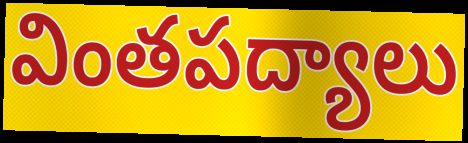
వింతపద్యాలు